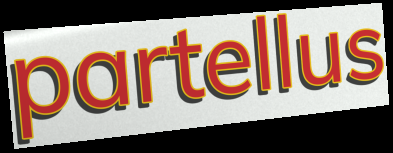
partellus